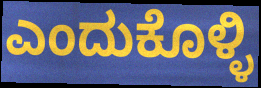
ಎಂದುಕೊಳ್ಳಿ